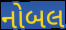
નોબલ